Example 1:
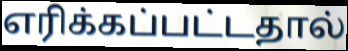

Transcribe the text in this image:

எரிக்கப்பட்டதால்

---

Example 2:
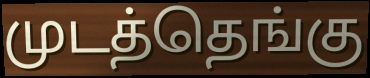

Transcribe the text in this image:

முடத்தெங்கு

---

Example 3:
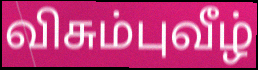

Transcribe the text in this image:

விசும்புவீழ்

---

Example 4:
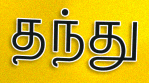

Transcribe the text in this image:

தந்து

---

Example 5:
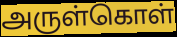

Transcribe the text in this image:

அருள்கொள்